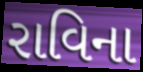
રાવિના